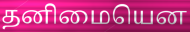
தனிமையென